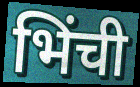
भिंची